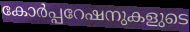
കോർപ്പറേഷനുകളുടെ